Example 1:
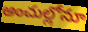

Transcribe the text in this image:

అంచుల్లోనూ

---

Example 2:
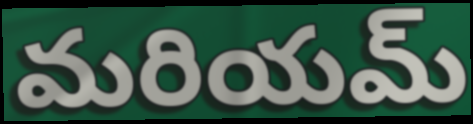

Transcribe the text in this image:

మరియమ్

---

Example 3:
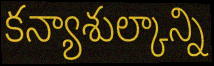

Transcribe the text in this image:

కన్యాశుల్కాన్ని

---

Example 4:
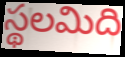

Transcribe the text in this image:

స్థలమిది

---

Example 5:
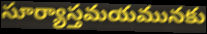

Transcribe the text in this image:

సూర్యాస్తమయమునకు